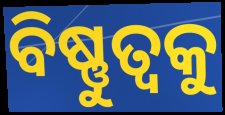
ବିଷ୍ଣୁତ୍ୱକୁ